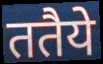
ततैये